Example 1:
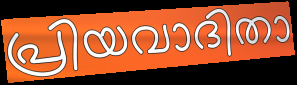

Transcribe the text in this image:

പ്രിയവാദിതാ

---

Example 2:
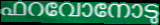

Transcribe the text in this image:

ഫറവോനോടു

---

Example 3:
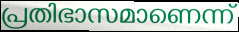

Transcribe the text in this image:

പ്രതിഭാസമാണെന്ന്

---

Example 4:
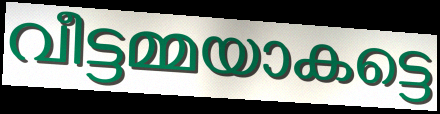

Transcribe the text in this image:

വീട്ടമ്മയാകട്ടെ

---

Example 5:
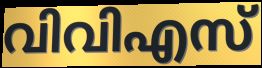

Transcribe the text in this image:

വിവിഎസ്